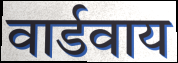
वार्डवाय